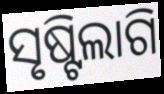
ସୃଷ୍ଟିଲାଗି